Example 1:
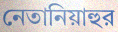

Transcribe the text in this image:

নেতানিয়াহুর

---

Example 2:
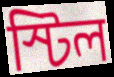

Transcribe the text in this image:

স্টিল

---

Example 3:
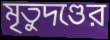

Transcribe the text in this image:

মৃতুদণ্ডের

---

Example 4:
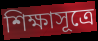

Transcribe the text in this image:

শিক্ষাসূত্রে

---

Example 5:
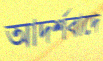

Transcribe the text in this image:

আদর্শবাদে